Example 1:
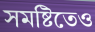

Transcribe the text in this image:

সমষ্টিতেও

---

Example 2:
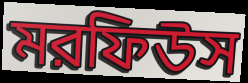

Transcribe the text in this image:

মরফিউস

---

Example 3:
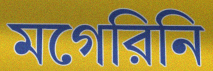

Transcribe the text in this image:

মগেরিনি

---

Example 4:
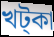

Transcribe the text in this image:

খট্কা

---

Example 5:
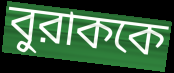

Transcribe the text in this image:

বুরাককে